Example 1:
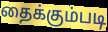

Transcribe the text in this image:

தைக்கும்படி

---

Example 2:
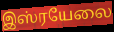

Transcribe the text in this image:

இஸ்ரயேலை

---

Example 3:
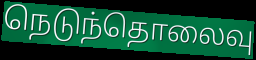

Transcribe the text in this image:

நெடுந்தொலைவு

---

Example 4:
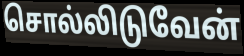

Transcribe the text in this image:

சொல்லிடுவேன்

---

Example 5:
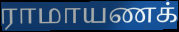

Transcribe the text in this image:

ராமாயணக்